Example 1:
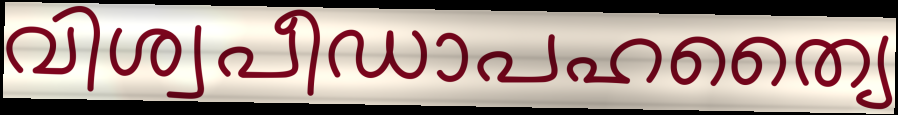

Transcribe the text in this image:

വിശ്വപീഡാപഹത്യൈ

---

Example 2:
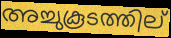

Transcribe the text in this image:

അച്ചുകൂടത്തില്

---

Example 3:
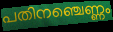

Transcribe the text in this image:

പതിനഞ്ചെണ്ണം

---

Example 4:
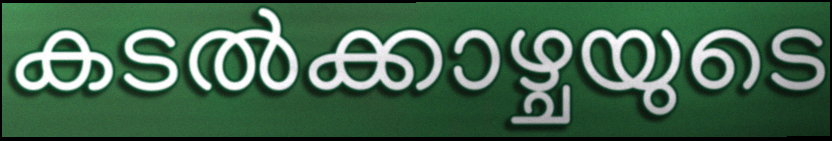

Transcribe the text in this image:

കടൽക്കാഴ്ചയുടെ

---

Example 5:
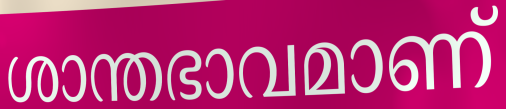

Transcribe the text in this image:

ശാന്തഭാവമാണ്